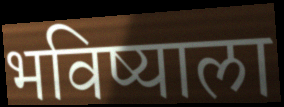
भविष्याला